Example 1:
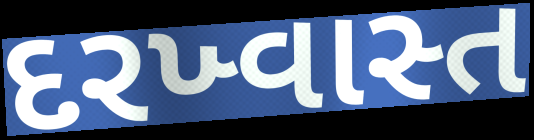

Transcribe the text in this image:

દરખ્વાસ્ત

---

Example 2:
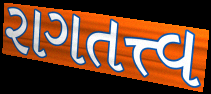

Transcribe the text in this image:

રાગતત્ત્વ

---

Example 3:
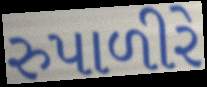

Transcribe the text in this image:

રુપાળીરે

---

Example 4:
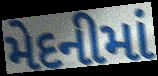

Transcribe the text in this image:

મેદનીમાં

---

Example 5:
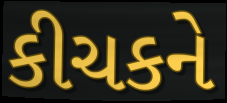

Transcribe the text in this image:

કીચકને